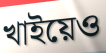
খাইয়েও